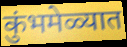
कुंभमेळ्यात